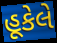
હૂકેલે